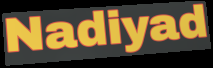
Nadiyad